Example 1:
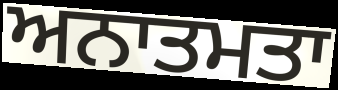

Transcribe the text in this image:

ਅਨਾਤਮਤਾ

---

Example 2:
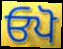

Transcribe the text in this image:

ਓਪੋ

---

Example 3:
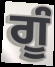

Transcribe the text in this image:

ਗੂੰ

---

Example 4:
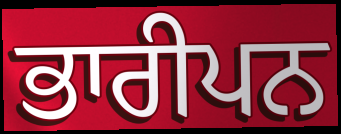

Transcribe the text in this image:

ਭਾਰੀਪਨ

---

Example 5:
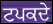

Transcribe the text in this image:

ਟਪਕਦੇ